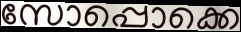
സോപ്പൊക്കെ